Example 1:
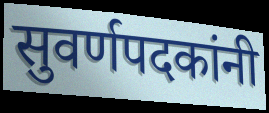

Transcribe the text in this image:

सुवर्णपदकांनी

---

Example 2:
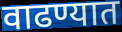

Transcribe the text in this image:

वाढण्यात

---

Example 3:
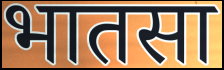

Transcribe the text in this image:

भातसा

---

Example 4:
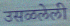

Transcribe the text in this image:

उसळलेली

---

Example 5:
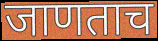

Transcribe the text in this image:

जाणताच